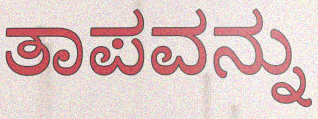
ತಾಪವನ್ನು